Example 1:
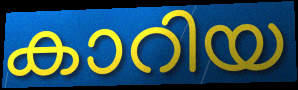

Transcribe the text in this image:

കാറിയ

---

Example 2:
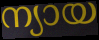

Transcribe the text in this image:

ന്യായ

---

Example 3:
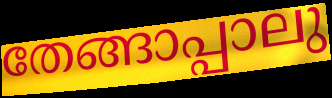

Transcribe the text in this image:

തേങ്ങാപ്പാലു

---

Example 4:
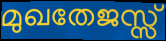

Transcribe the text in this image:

മുഖതേജസ്സ്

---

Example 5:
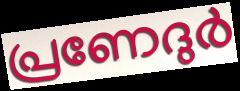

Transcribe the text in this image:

പ്രണേദുർ